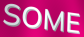
SOME